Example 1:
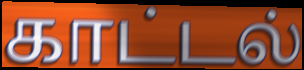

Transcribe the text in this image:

காட்டல்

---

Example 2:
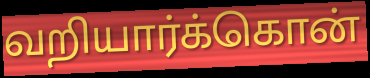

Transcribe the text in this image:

வறியார்க்கொன்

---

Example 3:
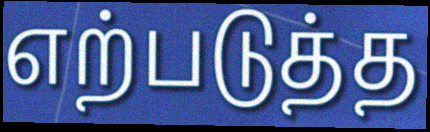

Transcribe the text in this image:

எற்படுத்த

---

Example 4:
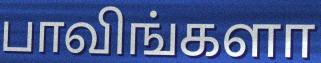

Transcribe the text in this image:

பாவிங்களா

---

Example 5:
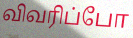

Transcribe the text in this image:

விவரிப்போ